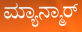
ಮ್ಯಾನ್ಮಾರ್